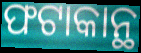
ଫଟାକାନ୍ଥ